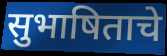
सुभाषिताचे